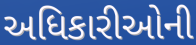
અધિકારીઓની